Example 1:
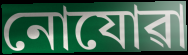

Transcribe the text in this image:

নোযোৱা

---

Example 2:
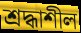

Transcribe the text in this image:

শ্ৰদ্ধাশীল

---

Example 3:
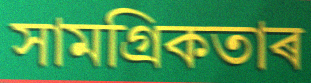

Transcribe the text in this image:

সামগ্ৰিকতাৰ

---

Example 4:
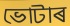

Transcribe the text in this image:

ভোটাৰ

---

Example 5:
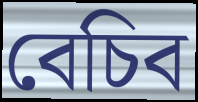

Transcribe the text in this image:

বেচিব